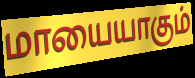
மாயையாகும்